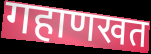
गहाणखत